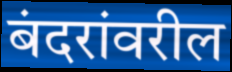
बंदरांवरील